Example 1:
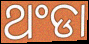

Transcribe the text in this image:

ଥଂଡା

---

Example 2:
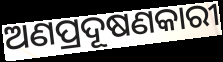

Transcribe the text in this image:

ଅଣପ୍ରଦୂଷଣକାରୀ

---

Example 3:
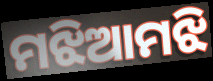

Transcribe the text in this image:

ମଝିଆମଝି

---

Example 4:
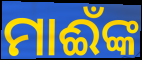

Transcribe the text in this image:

ମାଈଁଙ୍କ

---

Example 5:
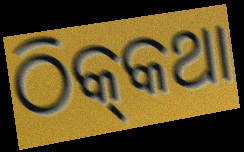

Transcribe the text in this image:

ଠିକ୍‌କଥା